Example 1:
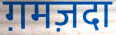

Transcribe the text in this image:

ग़मज़दा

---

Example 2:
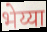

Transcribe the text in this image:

भेय्या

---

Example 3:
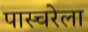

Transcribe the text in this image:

पास्चरेला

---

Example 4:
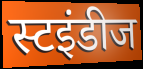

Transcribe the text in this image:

स्टइंडीज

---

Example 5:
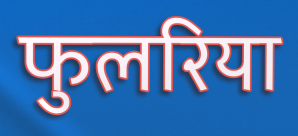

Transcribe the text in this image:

फुलरिया